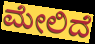
ಮೇಲಿದೆ